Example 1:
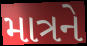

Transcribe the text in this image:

માત્રને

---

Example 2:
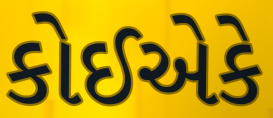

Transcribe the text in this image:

કોઈએકે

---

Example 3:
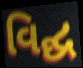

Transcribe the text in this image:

વિદ્ઘ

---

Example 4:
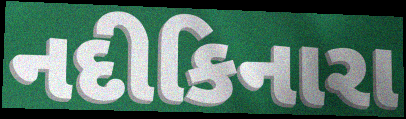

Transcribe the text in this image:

નદીકિનારા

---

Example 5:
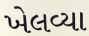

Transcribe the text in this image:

ખેલવ્યા